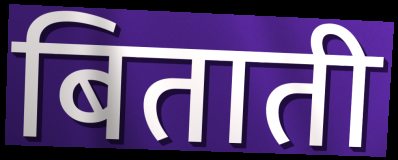
बिताती